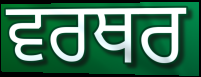
ਵਰਥਰ